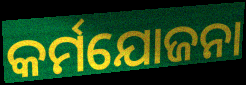
କର୍ମଯୋଜନା